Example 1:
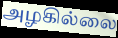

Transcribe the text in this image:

அழகில்லை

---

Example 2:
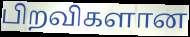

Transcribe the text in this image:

பிறவிகளான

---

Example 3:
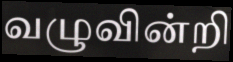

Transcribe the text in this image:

வழுவின்றி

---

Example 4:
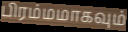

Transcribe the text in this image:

பிரம்மமாகவும்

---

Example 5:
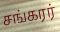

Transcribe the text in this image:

சங்கரர்